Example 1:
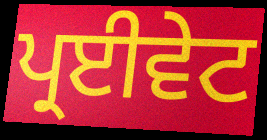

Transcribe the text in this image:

ਪ੍ਰਈਵੇਟ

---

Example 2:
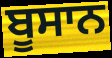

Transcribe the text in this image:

ਬੂਸਾਨ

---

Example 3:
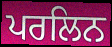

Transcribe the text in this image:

ਪਰਲਿਨ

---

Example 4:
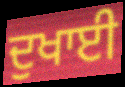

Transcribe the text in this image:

ਦੁਖਾਈ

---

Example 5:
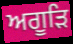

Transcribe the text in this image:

ਅਗੂੜਿ